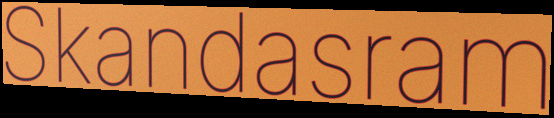
Skandasram